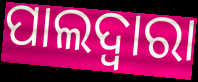
ପାଲଦ୍ୱାରା